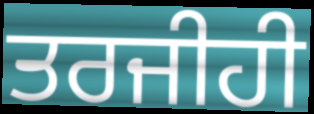
ਤਰਜੀਹੀ